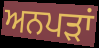
ਅਨਪੜਾਂ